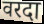
वरदा